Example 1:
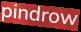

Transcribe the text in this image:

pindrow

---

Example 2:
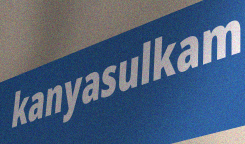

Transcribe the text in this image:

kanyasulkam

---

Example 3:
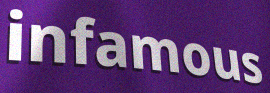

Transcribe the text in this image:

infamous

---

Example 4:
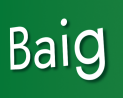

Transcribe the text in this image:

Baig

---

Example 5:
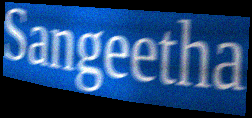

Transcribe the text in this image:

Sangeetha